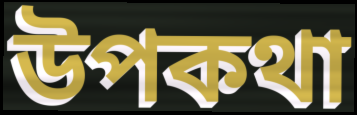
উপকথা